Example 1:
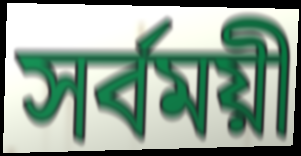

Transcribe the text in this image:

সর্বময়ী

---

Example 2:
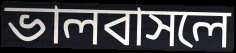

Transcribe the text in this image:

ভালবাসলে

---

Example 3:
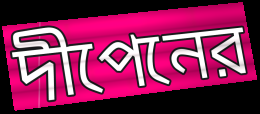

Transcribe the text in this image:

দীপেনের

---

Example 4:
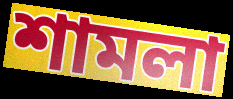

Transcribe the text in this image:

শামলা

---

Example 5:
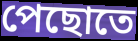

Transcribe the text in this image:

পেছোতে